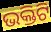
ଭକ୍ତିଟି